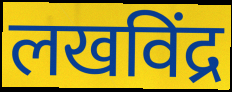
लखविंद्र